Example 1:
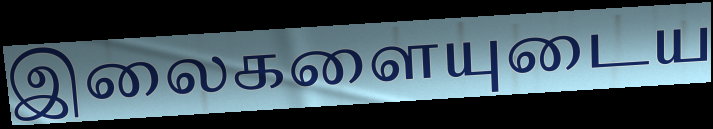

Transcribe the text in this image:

இலைகளையுடைய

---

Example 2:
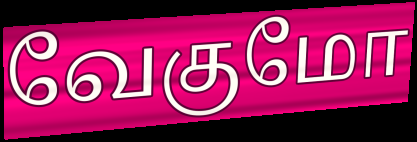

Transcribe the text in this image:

வேகுமோ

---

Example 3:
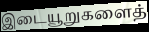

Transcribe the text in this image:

இடையூறுகளைத்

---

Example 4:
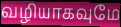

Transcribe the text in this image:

வழியாகவுமே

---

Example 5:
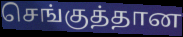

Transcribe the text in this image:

செங்குத்தான